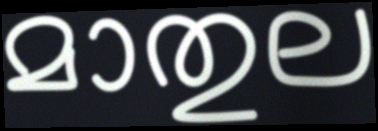
മാതുല